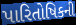
પારિતોષિકની